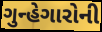
ગુન્હેગારોની